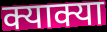
क्याक्या